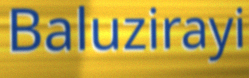
Baluzirayi